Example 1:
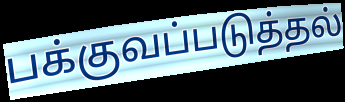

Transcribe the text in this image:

பக்குவப்படுத்தல்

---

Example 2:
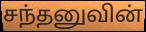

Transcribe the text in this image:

சந்தனுவின்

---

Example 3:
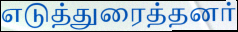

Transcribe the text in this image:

எடுத்துரைத்தனர்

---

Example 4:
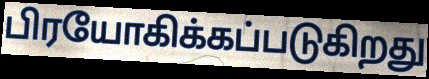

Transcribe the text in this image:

பிரயோகிக்கப்படுகிறது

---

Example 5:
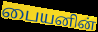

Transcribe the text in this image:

பையனின்